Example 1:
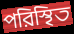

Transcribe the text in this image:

পরিস্থিত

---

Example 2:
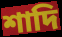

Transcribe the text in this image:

শাদি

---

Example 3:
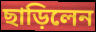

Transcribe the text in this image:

ছাড়িলেন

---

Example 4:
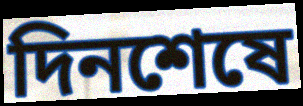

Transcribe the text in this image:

দিনশেষে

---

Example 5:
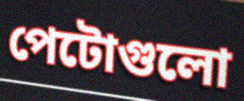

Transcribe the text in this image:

পেটোগুলো